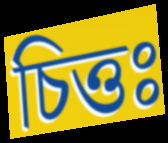
চিত্তঃ